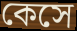
কেসে